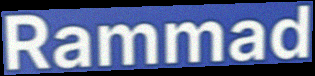
Rammad